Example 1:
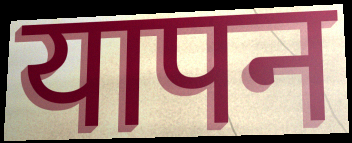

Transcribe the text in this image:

यापन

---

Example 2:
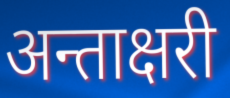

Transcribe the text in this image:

अन्ताक्षरी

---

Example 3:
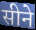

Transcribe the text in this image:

सीने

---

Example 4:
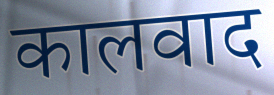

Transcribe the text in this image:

कालवाद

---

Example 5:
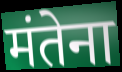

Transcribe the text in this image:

मंतेना